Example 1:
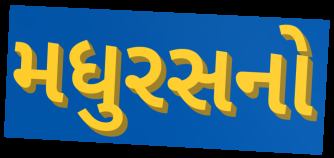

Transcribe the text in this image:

મધુરસનો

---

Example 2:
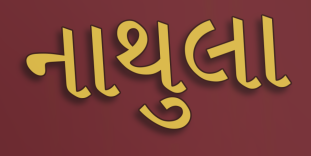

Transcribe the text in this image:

નાથુલા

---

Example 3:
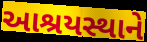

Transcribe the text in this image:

આશ્રયસ્થાને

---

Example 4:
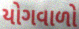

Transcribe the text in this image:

યોગવાળો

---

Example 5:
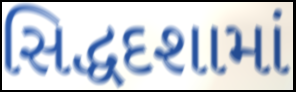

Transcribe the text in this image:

સિદ્ધદશામાં